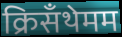
क्रिसँथेमम